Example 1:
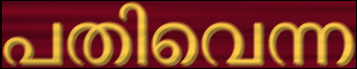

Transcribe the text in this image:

പതിവെന്ന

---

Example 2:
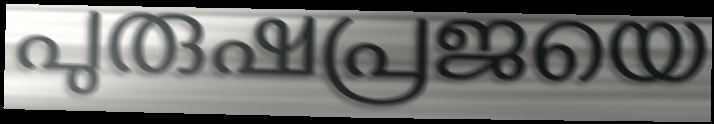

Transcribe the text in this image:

പുരുഷപ്രജയെ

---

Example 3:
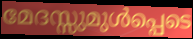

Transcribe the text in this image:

മേദസ്സുമുൾപ്പെടെ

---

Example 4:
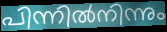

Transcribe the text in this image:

പിന്നിൽനിന്നും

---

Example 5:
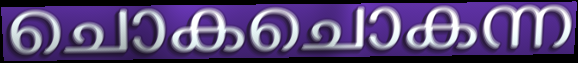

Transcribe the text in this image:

ചൊകചൊകന്ന